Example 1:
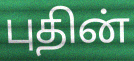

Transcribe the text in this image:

புதின்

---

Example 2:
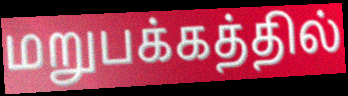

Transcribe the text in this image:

மறுபக்கத்தில்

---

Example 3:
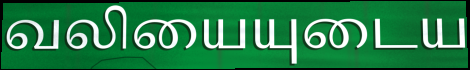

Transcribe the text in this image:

வலியையுடைய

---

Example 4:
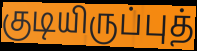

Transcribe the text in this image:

குடியிருப்புத்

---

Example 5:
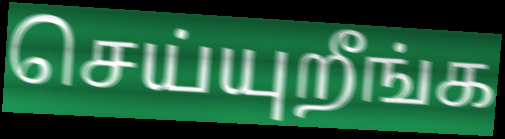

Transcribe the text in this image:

செய்யுறீங்க